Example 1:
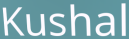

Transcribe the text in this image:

Kushal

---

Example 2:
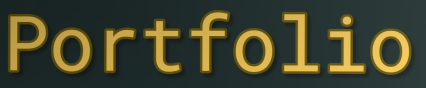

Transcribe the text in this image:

Portfolio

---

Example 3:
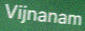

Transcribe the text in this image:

Vijnanam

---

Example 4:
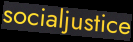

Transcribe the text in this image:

socialjustice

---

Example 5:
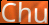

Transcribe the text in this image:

Chu